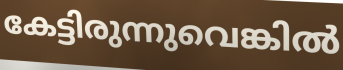
കേട്ടിരുന്നുവെങ്കിൽ